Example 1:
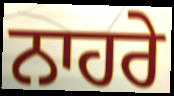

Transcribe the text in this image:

ਨਾਹਰੇ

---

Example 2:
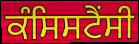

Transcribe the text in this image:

ਕੰਸਿਸਟੈਂਸੀ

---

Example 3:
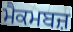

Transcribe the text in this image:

ਮੈਕਮਬਜ਼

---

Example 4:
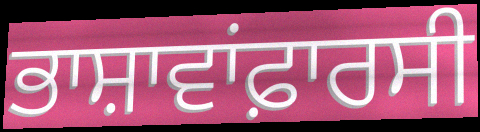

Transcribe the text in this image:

ਭਾਸ਼ਾਵਾਂਫ਼ਾਰਸੀ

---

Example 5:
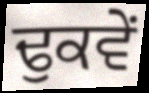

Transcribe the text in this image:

ਢੁਕਵੇਂ